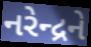
નરેન્દ્રને